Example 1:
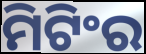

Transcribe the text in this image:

ମିଟିଂର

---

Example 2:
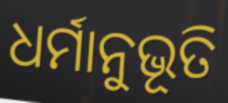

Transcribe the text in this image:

ଧର୍ମାନୁଭୂତି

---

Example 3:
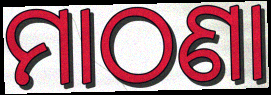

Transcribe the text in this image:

ମାଠଣା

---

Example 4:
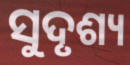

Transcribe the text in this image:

ସୁଦୃଶ୍ୟ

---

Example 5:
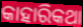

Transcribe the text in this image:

କାହାରିକଥା